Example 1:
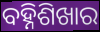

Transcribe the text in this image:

ବହ୍ନିଶିଖାର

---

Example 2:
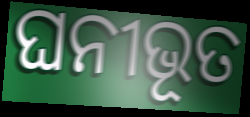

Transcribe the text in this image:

ଘନୀଭୂତ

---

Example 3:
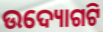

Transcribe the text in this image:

ଉଦ୍ୟୋଗଟି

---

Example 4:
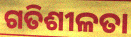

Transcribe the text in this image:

ଗତିଶୀଳତା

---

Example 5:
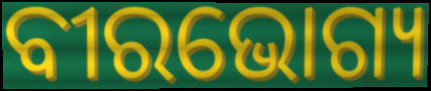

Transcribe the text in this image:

ବୀରଭୋଗ୍ୟ